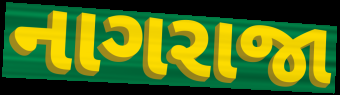
નાગરાજા